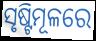
ସୃଷ୍ଟିମୂଳରେ